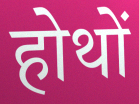
होथों